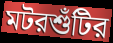
মটরশুঁটির